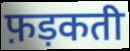
फ़ड़कती